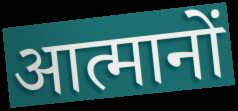
आत्मानों